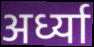
अर्ध्या